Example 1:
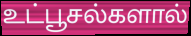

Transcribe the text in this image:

உட்பூசல்களால்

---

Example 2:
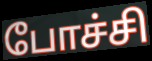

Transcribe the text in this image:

போச்சி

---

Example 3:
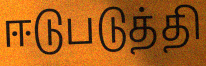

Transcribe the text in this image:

ஈடுபடுத்தி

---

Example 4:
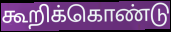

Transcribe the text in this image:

கூறிக்கொண்டு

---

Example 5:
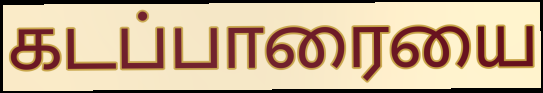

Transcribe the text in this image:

கடப்பாரையை